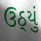
ઉઠ્યું